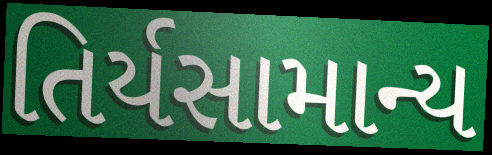
તિર્યસામાન્ય